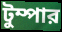
টুম্পার